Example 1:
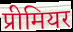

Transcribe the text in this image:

प्रीमियर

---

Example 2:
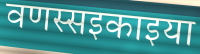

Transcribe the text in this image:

वणस्सइकाइया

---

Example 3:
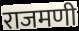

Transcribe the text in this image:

राजमणी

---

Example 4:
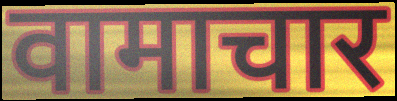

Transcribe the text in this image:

वामाचार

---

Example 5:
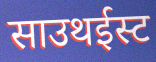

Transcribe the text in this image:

साउथईस्ट